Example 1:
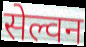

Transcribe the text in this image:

सेल्वन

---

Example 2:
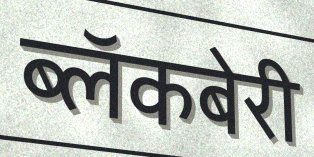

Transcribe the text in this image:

ब्लॅकबेरी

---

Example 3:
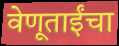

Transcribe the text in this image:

वेणूताईंचा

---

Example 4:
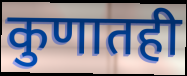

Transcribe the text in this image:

कुणातही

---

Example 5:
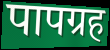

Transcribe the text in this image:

पापग्रह